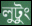
লুটুং